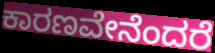
ಕಾರಣವೇನೆಂದರೆ